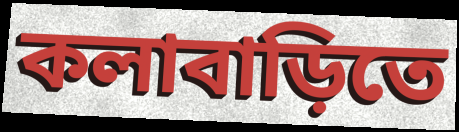
কলাবাড়িতে